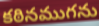
కఠినముగను